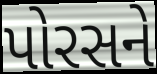
પોરસને